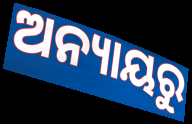
ଅନ୍ୟାୟରୁ